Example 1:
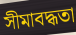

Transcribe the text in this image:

সীমাবদ্ধতা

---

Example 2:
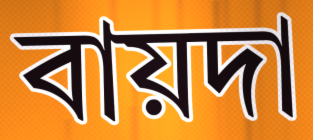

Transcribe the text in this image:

বায়দা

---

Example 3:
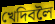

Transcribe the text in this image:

খেদিবলৈ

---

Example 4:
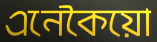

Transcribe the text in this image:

এনেকৈয়ো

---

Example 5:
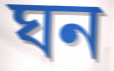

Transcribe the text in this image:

ঘন